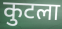
कुटला